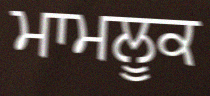
ਮਾਮਲੂਕ